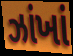
ઝાંખાં